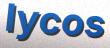
lycos